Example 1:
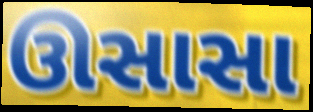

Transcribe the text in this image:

ઊસાસા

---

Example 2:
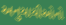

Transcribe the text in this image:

અનુયાયીઓનો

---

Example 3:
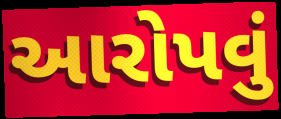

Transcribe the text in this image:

આરોપવું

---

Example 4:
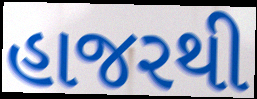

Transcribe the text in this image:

હાજરથી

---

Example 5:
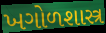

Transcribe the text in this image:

ખગોળશાસ્ત્ર